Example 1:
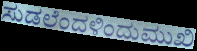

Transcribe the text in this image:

ಸುಡಲೆಂದಳಿಂದುಮುಖಿ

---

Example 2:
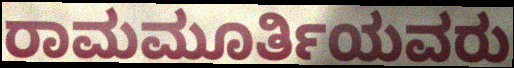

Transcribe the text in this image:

ರಾಮಮೂರ್ತಿಯವರು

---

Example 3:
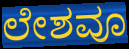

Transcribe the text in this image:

ಲೇಶವೂ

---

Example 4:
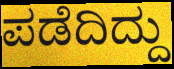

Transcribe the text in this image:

ಪಡೆದಿದ್ದು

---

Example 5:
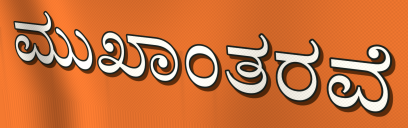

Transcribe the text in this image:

ಮುಖಾಂತರವೆ